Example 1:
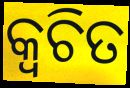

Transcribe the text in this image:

କ୍ବଚିତ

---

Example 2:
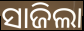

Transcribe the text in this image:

ସାଜିଲା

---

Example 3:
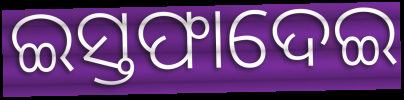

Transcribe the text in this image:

ଇସ୍ତଫାଦେଇ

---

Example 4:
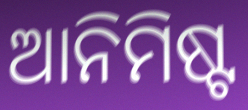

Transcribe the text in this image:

ଆନିମିଷ୍ଟ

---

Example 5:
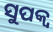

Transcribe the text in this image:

ସୁପକ୍ବ